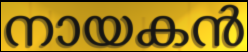
നായകൻ